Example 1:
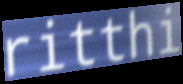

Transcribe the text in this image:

ritthi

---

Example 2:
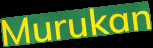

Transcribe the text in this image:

Murukan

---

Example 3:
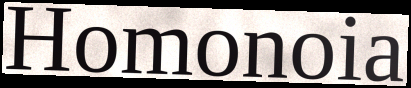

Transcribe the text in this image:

Homonoia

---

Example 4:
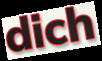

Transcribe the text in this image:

dich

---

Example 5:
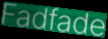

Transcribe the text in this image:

Fadfade